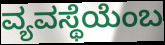
ವ್ಯವಸ್ಥೆಯೆಂಬ